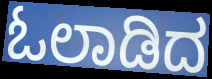
ಓಲಾಡಿದ